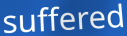
suffered